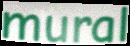
mural